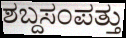
ಶಬ್ದಸಂಪತ್ತು